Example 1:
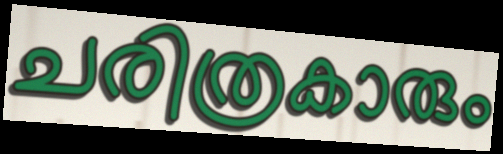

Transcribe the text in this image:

ചരിത്രകാരും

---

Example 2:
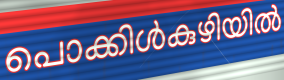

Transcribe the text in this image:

പൊക്കിൾകുഴിയിൽ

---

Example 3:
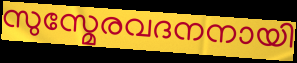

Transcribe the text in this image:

സുസ്മേരവദനനായി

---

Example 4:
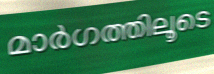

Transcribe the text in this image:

മാർഗത്തിലൂടെ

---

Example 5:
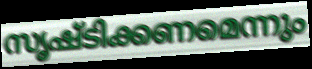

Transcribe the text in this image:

സൃഷ്ടിക്കണമെന്നും